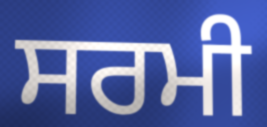
ਸਰਮੀ